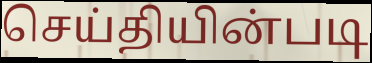
செய்தியின்படி